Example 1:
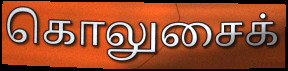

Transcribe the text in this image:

கொலுசைக்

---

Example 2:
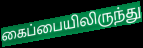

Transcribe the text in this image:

கைப்பையிலிருந்து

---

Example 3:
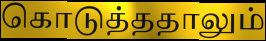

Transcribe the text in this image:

கொடுத்ததாலும்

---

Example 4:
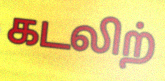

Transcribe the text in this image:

கடலிற்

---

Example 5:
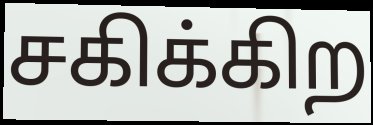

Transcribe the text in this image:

சகிக்கிற